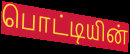
பொட்டியின்